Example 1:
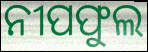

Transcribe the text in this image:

ନୀପଫୁଲ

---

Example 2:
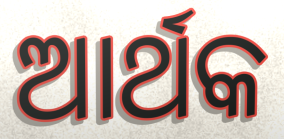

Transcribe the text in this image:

ଆର୍ଥକ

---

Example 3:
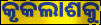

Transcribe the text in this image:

କୃକଲାଶକୁ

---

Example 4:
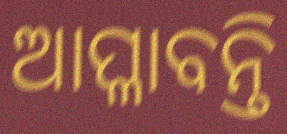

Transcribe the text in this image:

ଆପ୍ଳାବନ୍ତି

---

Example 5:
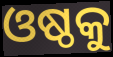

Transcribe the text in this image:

ଓଷ୍ଠକୁ